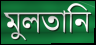
মুলতানি